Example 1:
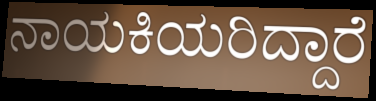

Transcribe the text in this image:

ನಾಯಕಿಯರಿದ್ದಾರೆ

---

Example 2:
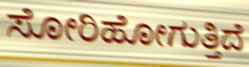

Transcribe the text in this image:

ಸೋರಿಹೋಗುತ್ತಿದೆ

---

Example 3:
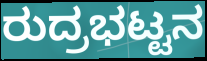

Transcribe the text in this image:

ರುದ್ರಭಟ್ಟನ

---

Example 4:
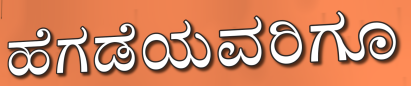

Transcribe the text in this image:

ಹೆಗಡೆಯವರಿಗೂ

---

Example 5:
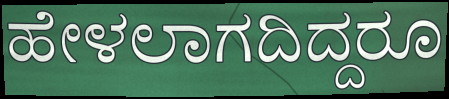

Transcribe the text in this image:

ಹೇಳಲಾಗದಿದ್ದರೂ